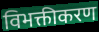
विभक्तीकरण